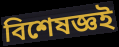
বিশেষজ্ঞই